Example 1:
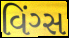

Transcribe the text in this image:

વિંગ્સ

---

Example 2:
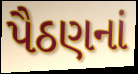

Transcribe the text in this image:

પૈઠણનાં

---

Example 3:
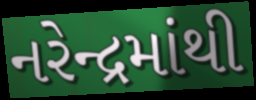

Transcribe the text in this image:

નરેન્દ્રમાંથી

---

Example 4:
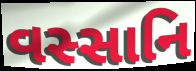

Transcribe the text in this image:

વસ્સાનિ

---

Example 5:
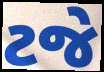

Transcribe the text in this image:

ટજે